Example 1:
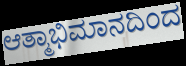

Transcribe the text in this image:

ಆತ್ಮಾಭಿಮಾನದಿಂದ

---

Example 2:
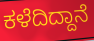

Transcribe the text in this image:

ಕಳೆದಿದ್ದಾನೆ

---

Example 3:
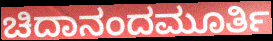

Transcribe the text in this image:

ಚಿದಾನಂದಮೂರ್ತಿ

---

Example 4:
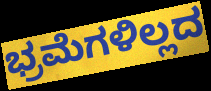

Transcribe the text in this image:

ಭ್ರಮೆಗಳಿಲ್ಲದ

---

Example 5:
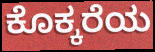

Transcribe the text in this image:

ಕೊಕ್ಕರೆಯ